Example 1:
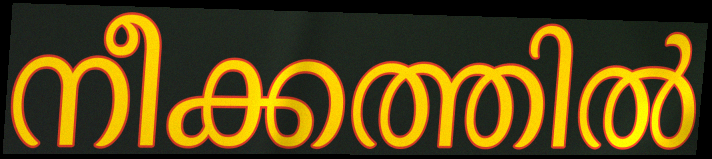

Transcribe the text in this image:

നീക്കത്തിൽ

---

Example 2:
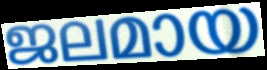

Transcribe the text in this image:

ജലമായ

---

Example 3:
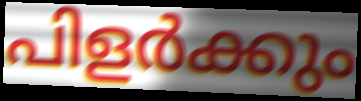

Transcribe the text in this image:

പിളർക്കും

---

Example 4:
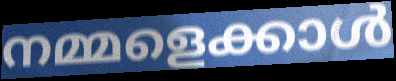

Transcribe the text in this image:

നമ്മളെക്കാൾ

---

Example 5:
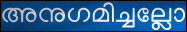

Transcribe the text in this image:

അനുഗമിച്ചല്ലോ